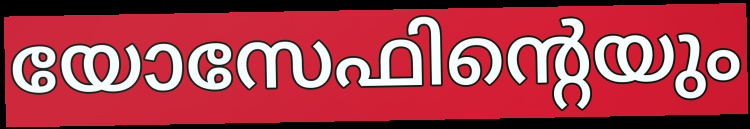
യോസേഫിന്റെയും